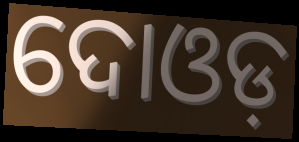
ଦୋଓଡ଼